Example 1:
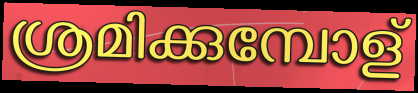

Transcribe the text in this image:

ശ്രമിക്കുമ്പോള്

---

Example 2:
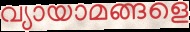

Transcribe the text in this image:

വ്യായാമങ്ങളെ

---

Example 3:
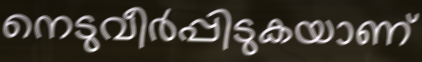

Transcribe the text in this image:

നെടുവീർപ്പിടുകയാണ്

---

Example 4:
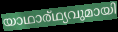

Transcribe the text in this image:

യാഥാര്ഥ്യവുമായി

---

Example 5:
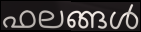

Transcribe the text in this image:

ഫലങ്ങൾ